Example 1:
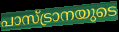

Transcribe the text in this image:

പാസ്ട്രാനയുടെ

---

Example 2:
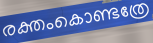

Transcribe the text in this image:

രക്തംകൊണ്ടത്രേ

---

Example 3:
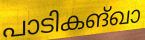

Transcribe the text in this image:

പാടികങ്ഖാ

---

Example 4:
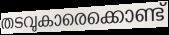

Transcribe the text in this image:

തടവുകാരെക്കൊണ്ട്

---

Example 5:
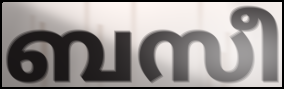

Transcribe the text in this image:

ബസീ